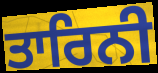
ਤਾਰਿਨੀ